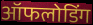
ऑफलोडिंग